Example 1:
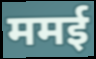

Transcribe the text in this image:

ममई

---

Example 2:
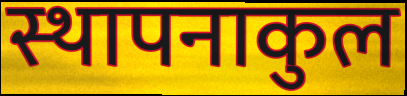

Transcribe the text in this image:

स्थापनाकुल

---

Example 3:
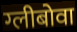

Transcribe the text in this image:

ग्लीबोवा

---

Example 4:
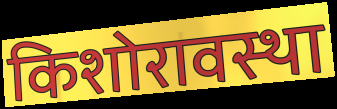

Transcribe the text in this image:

किशोरावस्था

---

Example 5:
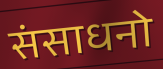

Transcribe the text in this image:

संसाधनो